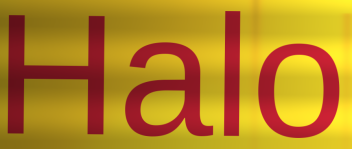
Halo